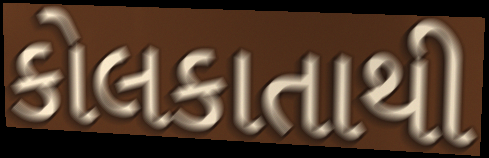
કોલકાતાથી